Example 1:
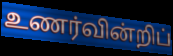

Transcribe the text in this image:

உணர்வின்றிப்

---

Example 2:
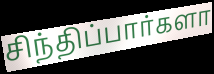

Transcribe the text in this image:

சிந்திப்பார்களா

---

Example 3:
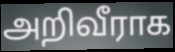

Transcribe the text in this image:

அறிவீராக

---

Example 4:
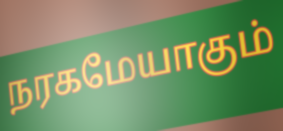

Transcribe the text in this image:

நரகமேயாகும்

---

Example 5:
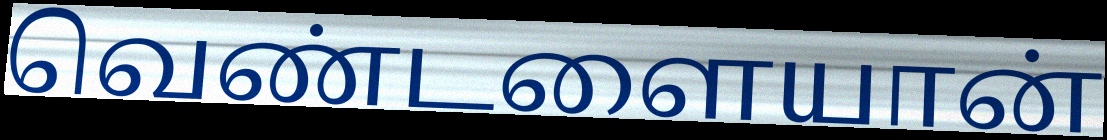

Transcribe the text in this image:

வெண்டளையான்